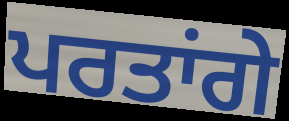
ਪਰਤਾਂਗੇ